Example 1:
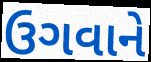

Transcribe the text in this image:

ઉગવાને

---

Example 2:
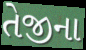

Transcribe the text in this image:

તેજીના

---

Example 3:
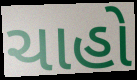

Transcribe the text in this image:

ચાહો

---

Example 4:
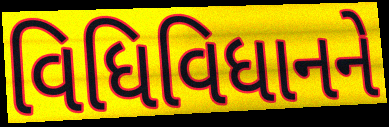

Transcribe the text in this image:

વિધિવિધાનને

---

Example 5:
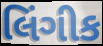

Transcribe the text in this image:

લિંગીક